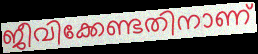
ജീവിക്കേണ്ടതിനാണ്